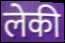
लेकी